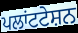
ਪਲਾਂਟਟੇਸ਼ਨ